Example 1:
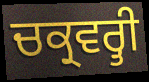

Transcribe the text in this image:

ਚਕ੍ਰਵਰ੍ਤੀ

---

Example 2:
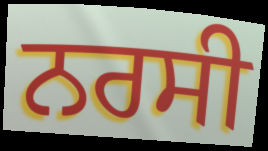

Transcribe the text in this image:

ਨਰਸੀ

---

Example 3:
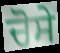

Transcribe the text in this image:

ਚੋਸੇ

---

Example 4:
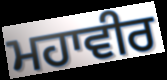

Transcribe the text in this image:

ਮਹਾਵੀਰ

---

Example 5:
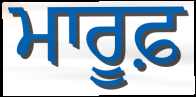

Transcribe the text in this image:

ਮਾਰੂਫ਼